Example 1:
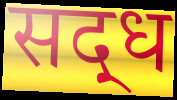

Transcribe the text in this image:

सद्ध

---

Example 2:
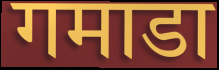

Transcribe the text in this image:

गमाडा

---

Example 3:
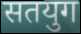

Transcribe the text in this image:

सतयुग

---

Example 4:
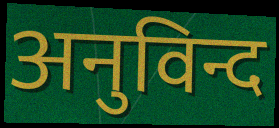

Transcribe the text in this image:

अनुविन्द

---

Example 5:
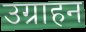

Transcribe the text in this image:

उग्राहन